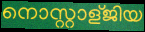
നൊസ്റ്റാള്ജിയ